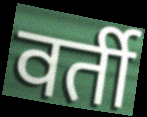
वर्ती